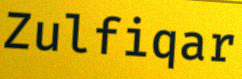
Zulfiqar